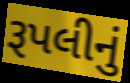
રૂપલીનું